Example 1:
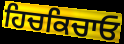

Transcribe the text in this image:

ਹਿਚਕਿਚਾਓ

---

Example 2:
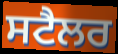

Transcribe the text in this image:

ਸਟੈਲਰ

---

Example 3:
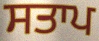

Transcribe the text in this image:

ਸਤਾਪ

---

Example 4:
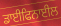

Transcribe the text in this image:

ਡਾਈਫਿਨਾਈਲ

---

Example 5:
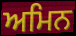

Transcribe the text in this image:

ਅਮਿਨ